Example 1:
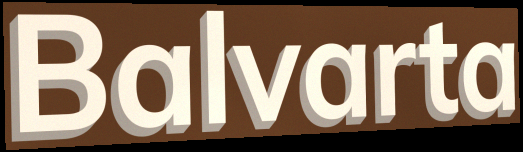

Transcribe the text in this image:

Balvarta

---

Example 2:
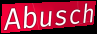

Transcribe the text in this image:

Abusch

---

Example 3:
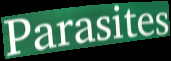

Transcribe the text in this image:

Parasites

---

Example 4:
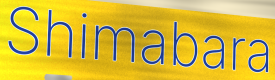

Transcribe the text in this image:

Shimabara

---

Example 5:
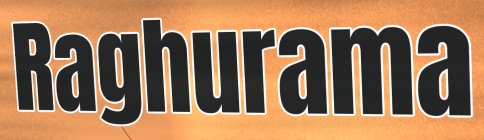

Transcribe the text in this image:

Raghurama